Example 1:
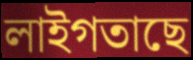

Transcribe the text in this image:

লাইগতাছে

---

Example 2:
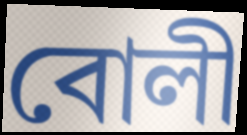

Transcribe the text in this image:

বোলী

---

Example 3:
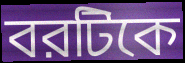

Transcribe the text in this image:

বরটিকে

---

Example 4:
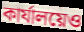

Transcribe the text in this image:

কার্যালয়েও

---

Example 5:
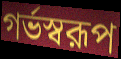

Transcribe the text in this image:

গর্ভস্বরূপ